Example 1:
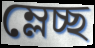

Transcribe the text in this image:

ম্লেচ্ছ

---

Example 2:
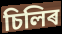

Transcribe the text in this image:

চিলিৰ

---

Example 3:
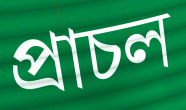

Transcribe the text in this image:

প্ৰাচল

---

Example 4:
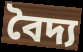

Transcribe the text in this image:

বৈদ্য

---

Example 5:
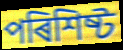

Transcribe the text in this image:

পৰিশিষ্ট